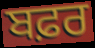
ਬਫ਼ਰ